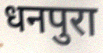
धनपुरा